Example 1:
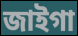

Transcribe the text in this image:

জাইগা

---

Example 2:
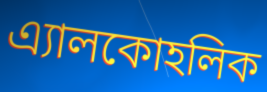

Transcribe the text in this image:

এ্যালকোহলিক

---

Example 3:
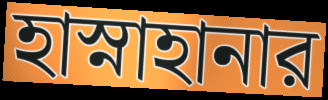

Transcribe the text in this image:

হাস্নাহানার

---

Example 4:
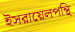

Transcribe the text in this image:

ইসরায়েলপন্থি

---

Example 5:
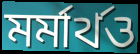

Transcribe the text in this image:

মর্মার্থও